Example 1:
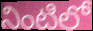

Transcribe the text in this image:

నింటిలో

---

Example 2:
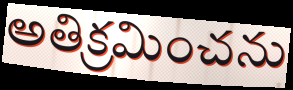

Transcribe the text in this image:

అతిక్రమించను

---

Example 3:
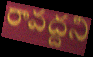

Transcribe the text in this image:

రావద్దని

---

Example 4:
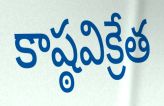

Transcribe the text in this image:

కాష్ఠవిక్రేత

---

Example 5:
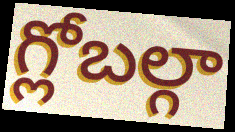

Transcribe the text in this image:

గ్లోబల్గా